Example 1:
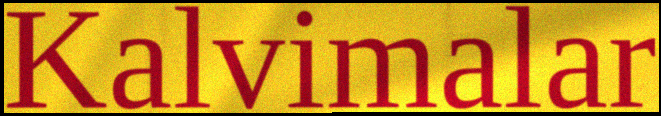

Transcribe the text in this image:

Kalvimalar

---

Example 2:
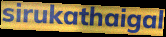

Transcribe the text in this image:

sirukathaigal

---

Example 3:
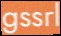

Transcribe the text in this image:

gssrl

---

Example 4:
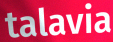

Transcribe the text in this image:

talavia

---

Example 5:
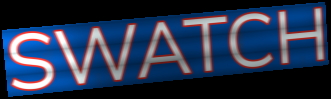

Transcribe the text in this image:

SWATCH